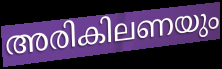
അരികിലണയും